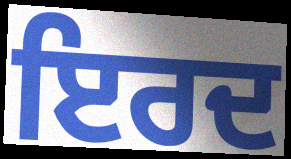
ਇਰਦ